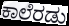
ಕಾಲೆರಡು